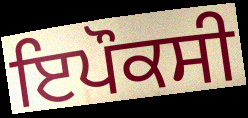
ਇਪੌਕਸੀ